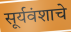
सूर्यवंशाचे